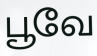
பூவே